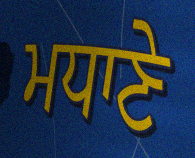
ਮਧਾਣੇ